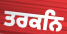
ਤਰਕਨਿ